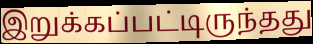
இறுக்கப்பட்டிருந்தது